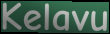
Kelavu